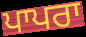
ਪਾਪਰਾ